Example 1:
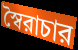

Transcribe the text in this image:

স্বৈরাচার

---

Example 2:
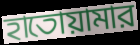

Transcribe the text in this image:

হাতোয়ামার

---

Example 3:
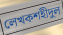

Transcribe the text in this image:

লেখকশহীদুল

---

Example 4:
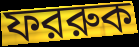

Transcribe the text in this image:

ফররুক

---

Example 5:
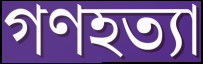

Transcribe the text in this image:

গণহত্যা